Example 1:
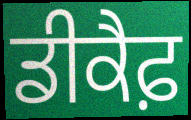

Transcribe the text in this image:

ਡੀਕੈਫ਼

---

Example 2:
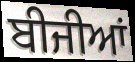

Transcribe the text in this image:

ਬੀਜੀਆਂ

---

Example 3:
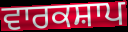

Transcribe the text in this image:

ਵਾਰਕਸ਼ਾਪ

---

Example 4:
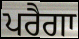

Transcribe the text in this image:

ਪਰੈਗਾ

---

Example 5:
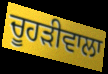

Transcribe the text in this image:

ਚੂਹੜੀਵਾਲਾ